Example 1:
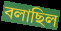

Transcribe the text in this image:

বলাছিল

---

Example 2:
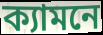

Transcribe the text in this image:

ক্যামনে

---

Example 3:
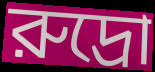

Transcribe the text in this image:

রুদ্রো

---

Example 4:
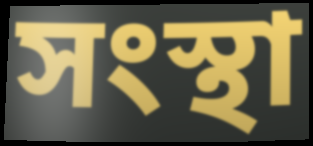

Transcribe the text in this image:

সংস্থা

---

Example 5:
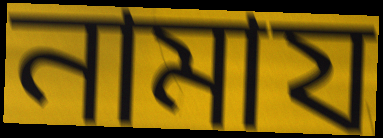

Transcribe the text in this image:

নামায